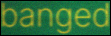
banged